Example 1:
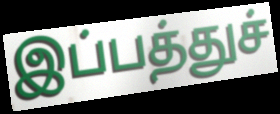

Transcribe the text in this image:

இப்பத்துச்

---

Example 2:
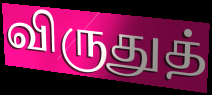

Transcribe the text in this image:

விருதுத்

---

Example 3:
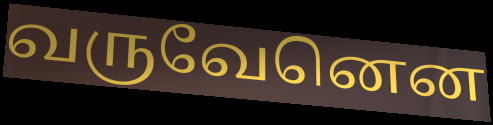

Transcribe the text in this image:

வருவேனென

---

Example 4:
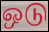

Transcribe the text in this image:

ஒடு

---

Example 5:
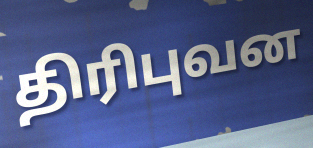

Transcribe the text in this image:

திரிபுவன